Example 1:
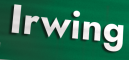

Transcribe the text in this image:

Irwing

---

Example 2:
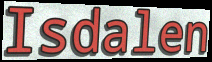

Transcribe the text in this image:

Isdalen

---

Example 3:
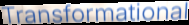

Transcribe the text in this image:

Transformational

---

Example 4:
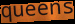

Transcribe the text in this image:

queens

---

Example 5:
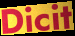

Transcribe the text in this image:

Dicit